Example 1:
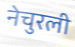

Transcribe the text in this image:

नेचुरली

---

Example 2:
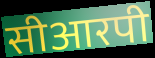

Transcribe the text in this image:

सीआरपी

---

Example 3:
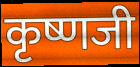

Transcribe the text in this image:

कृष्णजी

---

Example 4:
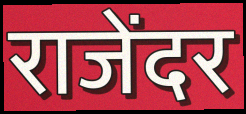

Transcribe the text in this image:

राजेंदर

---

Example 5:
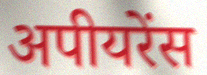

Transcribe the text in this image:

अपीयरेंस